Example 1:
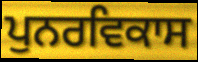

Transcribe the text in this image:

ਪੁਨਰਵਿਕਾਸ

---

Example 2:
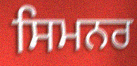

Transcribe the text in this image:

ਸਿਮਨਰ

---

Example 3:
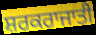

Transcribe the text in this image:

ਸ਼ਰਕਰਾਜਾਤੀ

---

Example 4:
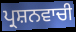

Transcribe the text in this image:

ਪ੍ਰਸ਼ਨਵਾਚੀ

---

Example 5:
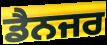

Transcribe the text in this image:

ਡੈਨਜਰ